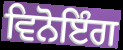
ਵਿਨੋਇੰਗ